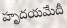
హృదయమేదీ